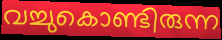
വച്ചുകൊണ്ടിരുന്ന